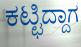
ಕಟ್ಟಿದ್ದಾಗ